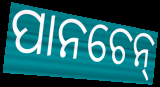
ପାନଚେନ୍